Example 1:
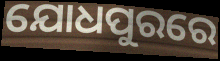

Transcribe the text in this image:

ଯୋଧପୁରରେ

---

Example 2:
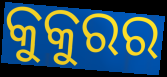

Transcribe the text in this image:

କୁକୁରର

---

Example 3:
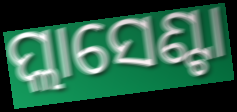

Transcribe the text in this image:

ପ୍ଲାସେଣ୍ଟା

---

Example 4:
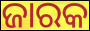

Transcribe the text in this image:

ଜାରକ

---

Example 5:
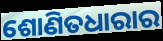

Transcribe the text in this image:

ଶୋଣିତଧାରାର